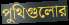
পুথিগুলোর